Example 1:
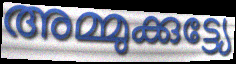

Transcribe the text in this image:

അമ്മുക്കുട്ട്യേ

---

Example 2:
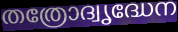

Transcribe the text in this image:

തത്രോദ്വൃദ്ധേന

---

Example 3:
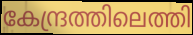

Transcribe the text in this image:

കേന്ദ്രത്തിലെത്തി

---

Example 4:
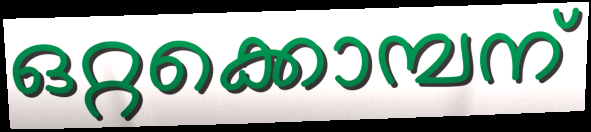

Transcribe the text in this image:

ഒറ്റക്കൊമ്പന്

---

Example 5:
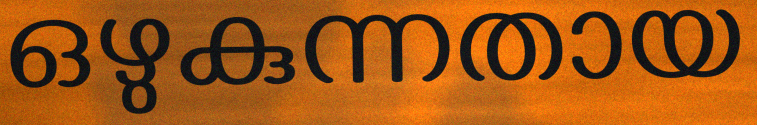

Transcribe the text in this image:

ഒഴുകുന്നതായ